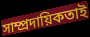
সাম্প্রদায়িকতাই